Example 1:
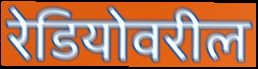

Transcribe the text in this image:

रेडियोवरील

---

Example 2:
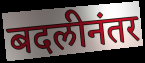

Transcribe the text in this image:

बदलीनंतर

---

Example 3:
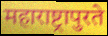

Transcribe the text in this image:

महाराष्ट्रापुरते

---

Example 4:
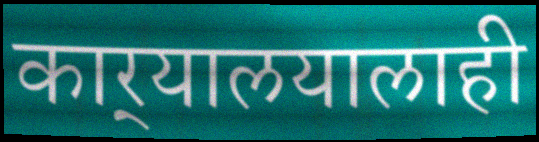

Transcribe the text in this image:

कार्यालयालाही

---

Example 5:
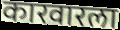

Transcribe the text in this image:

कारवारला